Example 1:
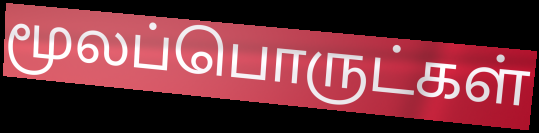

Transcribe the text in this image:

மூலப்பொருட்கள்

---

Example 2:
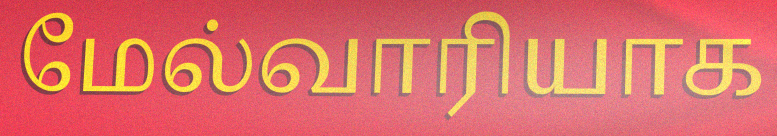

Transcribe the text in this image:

மேல்வாரியாக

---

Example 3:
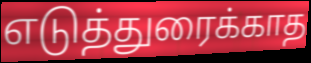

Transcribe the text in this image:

எடுத்துரைக்காத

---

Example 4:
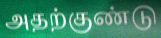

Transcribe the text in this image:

அதற்குண்டு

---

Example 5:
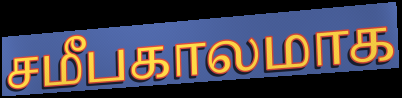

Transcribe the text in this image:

சமீபகாலமாக